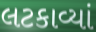
લટકાવ્યાં